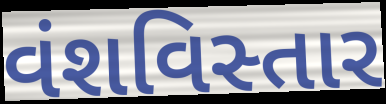
વંશવિસ્તાર